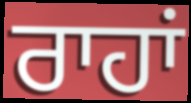
ਰਾਹਾਂ